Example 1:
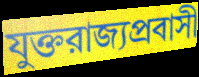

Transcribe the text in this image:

যুক্তরাজ্যপ্রবাসী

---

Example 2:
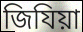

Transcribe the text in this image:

জিযিয়া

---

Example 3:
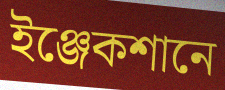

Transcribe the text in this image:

ইঞ্জেকশানে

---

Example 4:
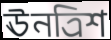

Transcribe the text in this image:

ঊনত্রিশ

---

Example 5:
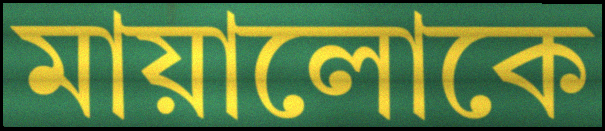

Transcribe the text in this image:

মায়ালোকে